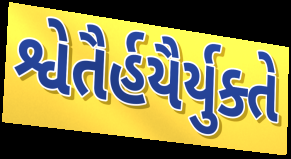
શ્વેતૈર્હયૈર્યુક્તે